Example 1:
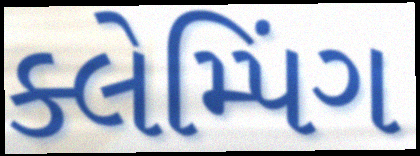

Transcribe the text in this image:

ક્લેમ્પિંગ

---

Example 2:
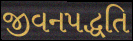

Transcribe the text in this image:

જીવનપદ્ધતિ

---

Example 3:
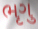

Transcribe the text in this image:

ભૃગુ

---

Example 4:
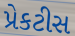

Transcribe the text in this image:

પ્રેકટીસ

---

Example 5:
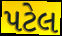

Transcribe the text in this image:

પટેલ